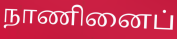
நாணினைப்